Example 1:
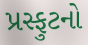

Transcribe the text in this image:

પ્રસ્ફુટનો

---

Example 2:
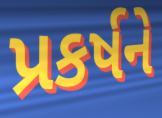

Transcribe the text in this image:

પ્રકર્ષને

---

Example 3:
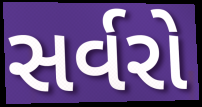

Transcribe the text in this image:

સર્વરો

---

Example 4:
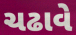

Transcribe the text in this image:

ચઢાવે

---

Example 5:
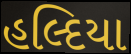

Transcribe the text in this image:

હલ્દિયા